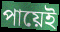
পায়েই